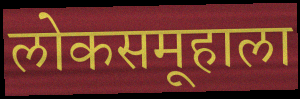
लोकसमूहाला